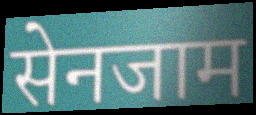
सेनजाम